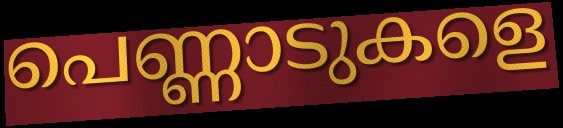
പെണ്ണാടുകളെ